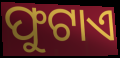
ଫୁଟାଏ